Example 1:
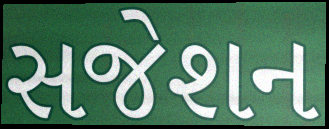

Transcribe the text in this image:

સજેશન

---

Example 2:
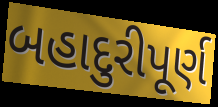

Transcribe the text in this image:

બહાદુરીપૂર્ણ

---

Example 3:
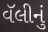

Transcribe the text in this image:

વૅલીનું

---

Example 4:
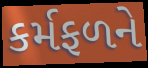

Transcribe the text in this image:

કર્મફળને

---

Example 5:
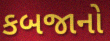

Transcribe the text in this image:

કબજાનો